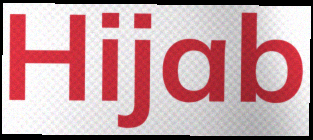
Hijab